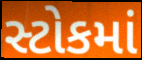
સ્ટોકમાં